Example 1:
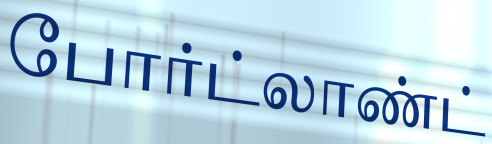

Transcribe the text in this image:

போர்ட்லாண்ட்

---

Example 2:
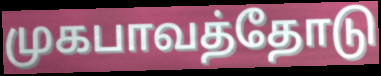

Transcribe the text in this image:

முகபாவத்தோடு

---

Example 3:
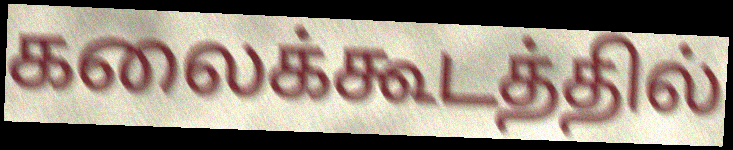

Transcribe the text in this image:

கலைக்கூடத்தில்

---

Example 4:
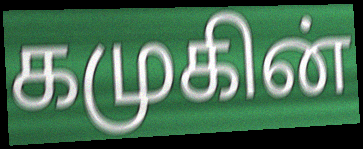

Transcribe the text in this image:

கமுகின்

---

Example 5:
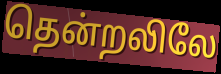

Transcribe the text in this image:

தென்றலிலே